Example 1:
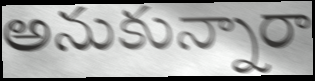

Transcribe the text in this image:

అనుకున్నారా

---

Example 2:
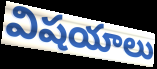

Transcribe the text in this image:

విషయాలు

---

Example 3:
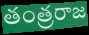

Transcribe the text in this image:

తంత్రరాజ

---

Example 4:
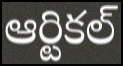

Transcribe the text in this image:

ఆర్టికల్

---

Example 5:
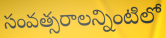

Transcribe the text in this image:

సంవత్సరాలన్నింటిలో